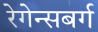
रेगेन्सबर्ग